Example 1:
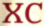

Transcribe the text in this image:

xc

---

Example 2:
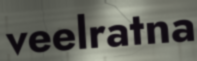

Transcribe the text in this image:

veelratna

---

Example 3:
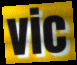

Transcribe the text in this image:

vic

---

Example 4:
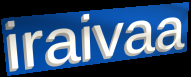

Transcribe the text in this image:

iraivaa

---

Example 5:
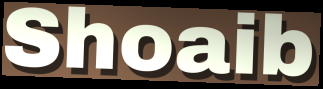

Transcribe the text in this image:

Shoaib